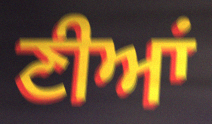
ਣੀਆਂ